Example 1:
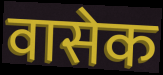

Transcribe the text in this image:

वासेक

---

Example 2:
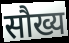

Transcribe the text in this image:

सौख्य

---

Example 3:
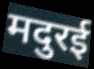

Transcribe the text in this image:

मदुरई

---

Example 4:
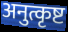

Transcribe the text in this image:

अनुत्कृष्ट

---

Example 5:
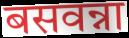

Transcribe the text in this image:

बसवन्ना